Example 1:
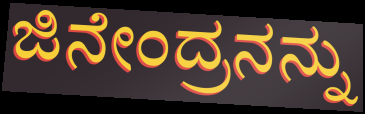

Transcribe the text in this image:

ಜಿನೇಂದ್ರನನ್ನು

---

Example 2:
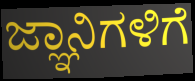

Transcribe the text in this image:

ಜ್ಞಾನಿಗಳಿಗೆ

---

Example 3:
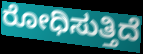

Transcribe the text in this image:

ರೋಧಿಸುತ್ತಿದೆ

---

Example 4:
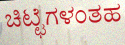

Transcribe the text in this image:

ಚಿಟ್ಟೆಗಳಂತಹ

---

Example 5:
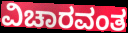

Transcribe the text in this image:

ವಿಚಾರವಂತ